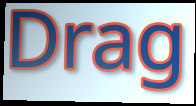
Drag